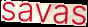
savas